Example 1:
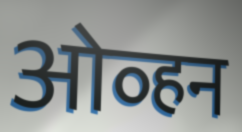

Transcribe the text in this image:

ओव्हन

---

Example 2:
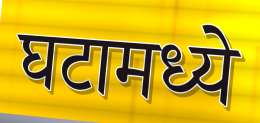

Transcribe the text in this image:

घटामध्ये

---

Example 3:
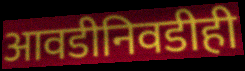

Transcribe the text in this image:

आवडीनिवडीही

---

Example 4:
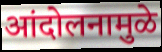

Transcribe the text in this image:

आंदोलनामुळे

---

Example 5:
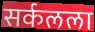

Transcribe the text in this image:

सर्कलला